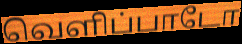
வெளிப்பாடோ